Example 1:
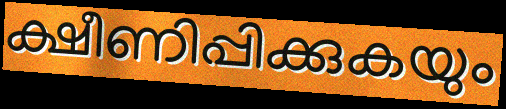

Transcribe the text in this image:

ക്ഷീണിപ്പിക്കുകയും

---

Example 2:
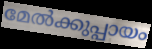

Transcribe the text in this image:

മേൽക്കുപ്പായം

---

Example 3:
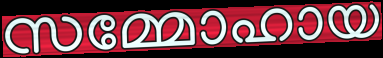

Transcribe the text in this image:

സമ്മോഹായ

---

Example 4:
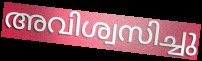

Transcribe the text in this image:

അവിശ്വസിച്ചു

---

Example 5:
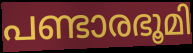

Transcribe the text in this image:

പണ്ടാരഭൂമി